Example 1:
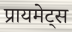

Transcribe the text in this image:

प्रायमेट्स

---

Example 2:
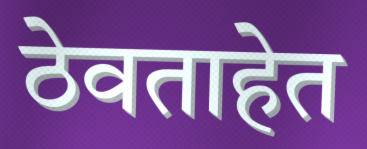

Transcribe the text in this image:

ठेवताहेत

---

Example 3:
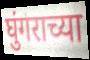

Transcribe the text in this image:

घुंगराच्या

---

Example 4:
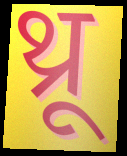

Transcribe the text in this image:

थ्रू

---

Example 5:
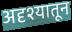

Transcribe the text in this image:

अदृश्यातून